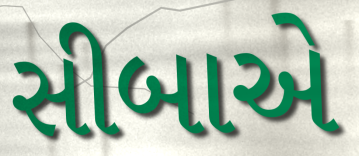
સીબાએ